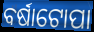
ବର୍ଷାଟୋପା